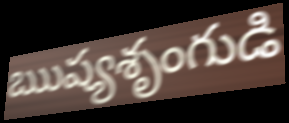
ఋష్యశృంగుడి